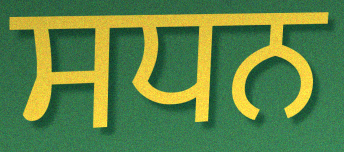
ਸਧਨ